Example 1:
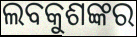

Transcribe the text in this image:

ଲବକୁଶଙ୍କର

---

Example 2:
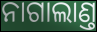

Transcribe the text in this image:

ନାଗାଲାଣ୍ତ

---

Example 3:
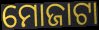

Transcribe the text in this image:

ମୋଜାଟା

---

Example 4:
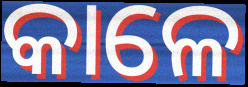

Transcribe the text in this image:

କାଳେ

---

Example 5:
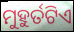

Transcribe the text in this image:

ମୁହୁର୍ତଟିଏ